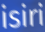
isiri